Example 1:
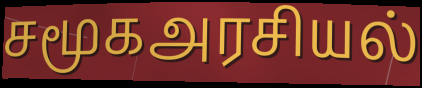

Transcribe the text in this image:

சமூகஅரசியல்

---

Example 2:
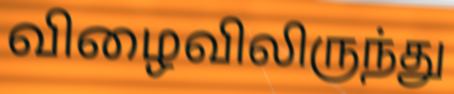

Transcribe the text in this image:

விழைவிலிருந்து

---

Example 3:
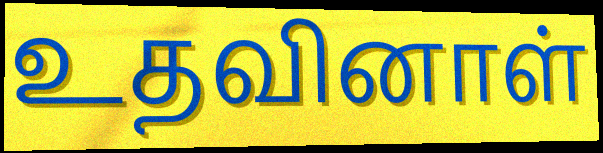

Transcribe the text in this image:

உதவினாள்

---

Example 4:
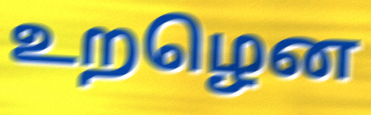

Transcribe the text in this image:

உறழென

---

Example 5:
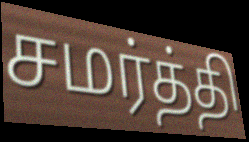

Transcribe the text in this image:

சமர்த்தி